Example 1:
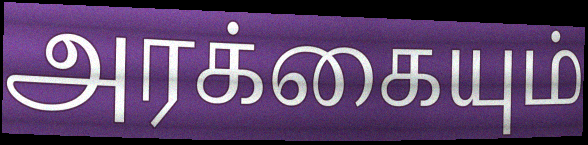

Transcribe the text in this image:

அரக்கையும்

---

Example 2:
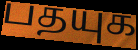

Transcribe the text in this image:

பதயுக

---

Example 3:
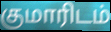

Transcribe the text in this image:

குமாரிடம்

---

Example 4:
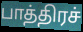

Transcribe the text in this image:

பாத்திரச்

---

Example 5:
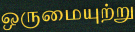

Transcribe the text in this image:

ஒருமையுற்று